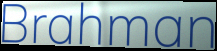
Brahman